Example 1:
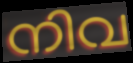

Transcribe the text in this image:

നിവ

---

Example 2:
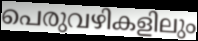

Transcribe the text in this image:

പെരുവഴികളിലും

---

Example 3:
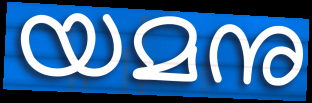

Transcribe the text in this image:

യമനു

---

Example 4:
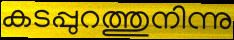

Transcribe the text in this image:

കടപ്പുറത്തുനിന്നു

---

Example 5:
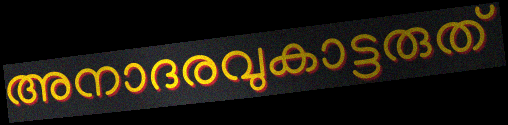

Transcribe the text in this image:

അനാദരവുകാട്ടരുത്